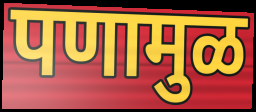
पणामुळ